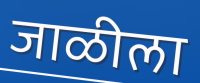
जाळीला